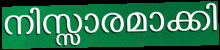
നിസ്സാരമാക്കി